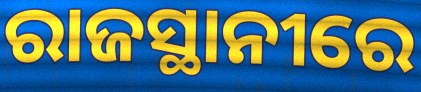
ରାଜସ୍ଥାନୀରେ